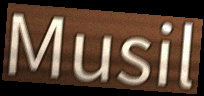
Musil